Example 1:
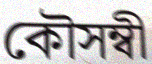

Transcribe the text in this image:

কৌসম্বী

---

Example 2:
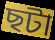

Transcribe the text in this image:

ছটা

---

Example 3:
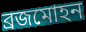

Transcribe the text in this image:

ব্ৰজমোহন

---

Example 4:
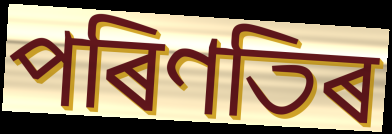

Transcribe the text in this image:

পৰিণতিৰ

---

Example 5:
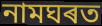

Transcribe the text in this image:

নামঘৰত